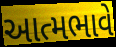
આત્મભાવે